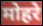
मोहरे